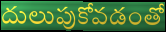
దులుపుకోవడంతో